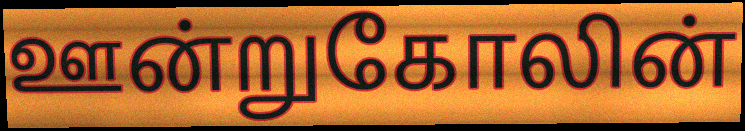
ஊன்றுகோலின்